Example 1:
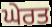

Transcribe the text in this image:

ਘੇਰਤ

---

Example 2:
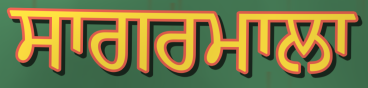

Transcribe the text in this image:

ਸਾਗਰਮਾਲਾ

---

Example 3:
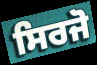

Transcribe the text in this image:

ਸਿਰਜੋ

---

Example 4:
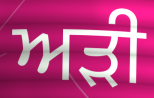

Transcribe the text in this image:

ਅੜੀ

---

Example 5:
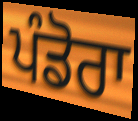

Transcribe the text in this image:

ਪੰਡੋਰਾ